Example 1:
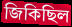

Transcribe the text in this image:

জিকিছিল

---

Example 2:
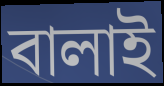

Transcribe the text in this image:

বালাই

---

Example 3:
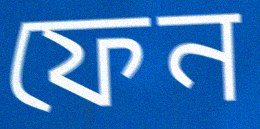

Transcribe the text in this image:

ফেন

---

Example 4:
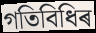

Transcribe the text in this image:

গতিবিধিৰ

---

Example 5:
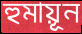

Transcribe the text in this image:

হুমায়ূন